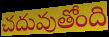
చదువుతోంది